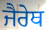
ਜੈਰੇਥ